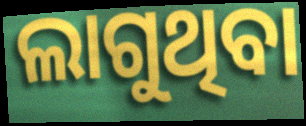
ଲାଗୁଥିବା